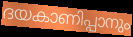
ദയകാണിപ്പാനും